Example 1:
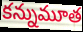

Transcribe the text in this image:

కన్నుమూత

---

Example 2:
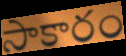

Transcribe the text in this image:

సాకారం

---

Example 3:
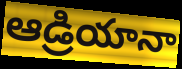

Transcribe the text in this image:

ఆడ్రియానా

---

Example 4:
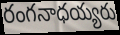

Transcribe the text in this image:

రంగనాధయ్యరు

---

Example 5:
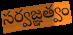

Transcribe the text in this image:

సర్వజ్ఞత్వం